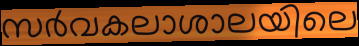
സർവകലാശാലയിലെ